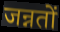
जन्नतों